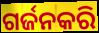
ଗର୍ଜନକରି